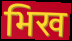
भिख